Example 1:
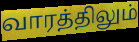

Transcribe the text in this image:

வாரத்திலும்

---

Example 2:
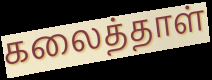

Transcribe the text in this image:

கலைத்தாள்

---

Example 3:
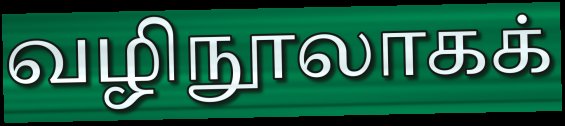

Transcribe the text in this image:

வழிநூலாகக்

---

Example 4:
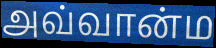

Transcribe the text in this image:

அவ்வான்ம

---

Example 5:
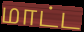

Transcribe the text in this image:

மாட்ட